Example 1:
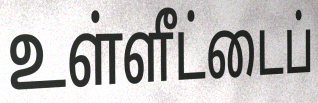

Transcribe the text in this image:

உள்ளீட்டைப்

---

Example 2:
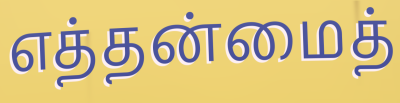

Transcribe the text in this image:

எத்தன்மைத்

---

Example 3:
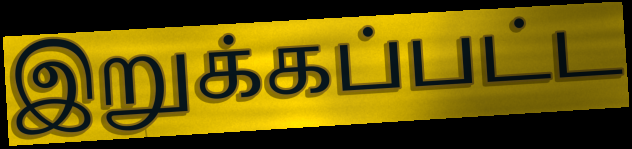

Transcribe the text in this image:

இறுக்கப்பட்ட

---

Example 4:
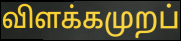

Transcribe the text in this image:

விளக்கமுறப்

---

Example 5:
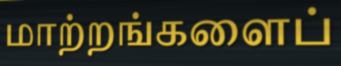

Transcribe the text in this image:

மாற்றங்களைப்